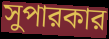
সুপারকার